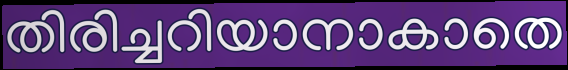
തിരിച്ചറിയാനാകാതെ